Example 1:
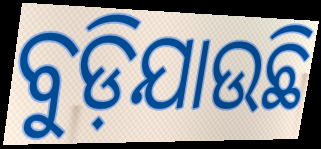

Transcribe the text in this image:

ବୁଡ଼ିଯାଉଛି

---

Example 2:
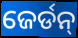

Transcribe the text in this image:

ଜେର୍ଡନ୍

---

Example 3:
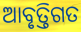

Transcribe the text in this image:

ଆବୃତ୍ତିଗତ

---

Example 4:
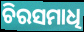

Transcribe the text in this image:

ଚିରସମାଧି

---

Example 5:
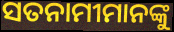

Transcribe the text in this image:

ସତନାମୀମାନଙ୍କୁ